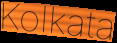
Kolkata